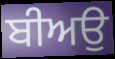
ਬੀਅਉ